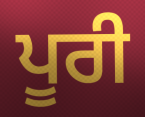
ਪੂਰੀ